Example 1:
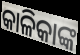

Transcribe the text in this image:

କାଳିକାଙ୍କ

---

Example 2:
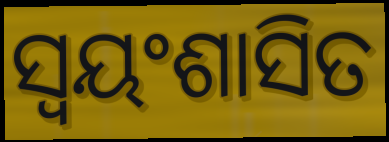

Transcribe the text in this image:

ସ୍ୱୟଂଶାସିତ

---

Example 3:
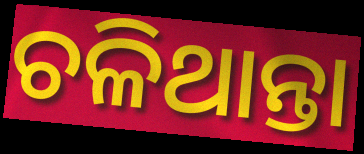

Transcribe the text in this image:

ଚଳିଥାନ୍ତା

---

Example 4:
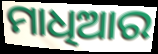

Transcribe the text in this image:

ମାଧିଆର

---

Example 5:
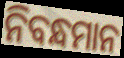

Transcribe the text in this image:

ନିବନ୍ଧମାନ